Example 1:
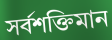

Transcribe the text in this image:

সৰ্বশক্তিমান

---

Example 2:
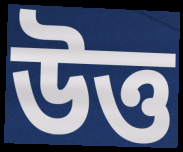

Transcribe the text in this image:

উত্ত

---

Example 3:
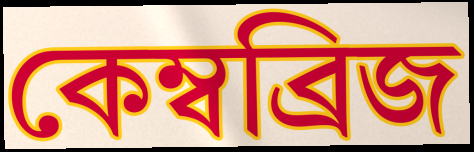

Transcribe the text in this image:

কেম্বব্ৰিজ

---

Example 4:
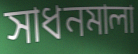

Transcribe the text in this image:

সাধনমালা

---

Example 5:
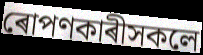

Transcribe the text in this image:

ৰোপণকাৰীসকলে